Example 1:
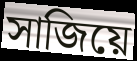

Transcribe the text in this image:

সাজিয়ে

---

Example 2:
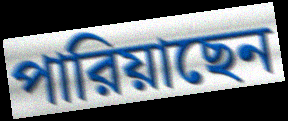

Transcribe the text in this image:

পারিয়াছেন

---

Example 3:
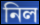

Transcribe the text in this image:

নিল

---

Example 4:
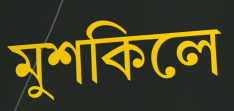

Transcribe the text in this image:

মুশকিলে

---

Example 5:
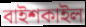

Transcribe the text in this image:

বাইশকাইল